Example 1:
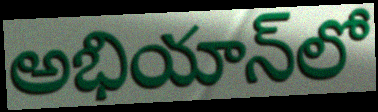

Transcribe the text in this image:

అభియాన్‌లో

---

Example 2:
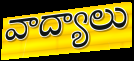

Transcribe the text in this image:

వాద్యాలు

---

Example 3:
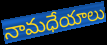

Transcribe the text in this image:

నామధేయాలు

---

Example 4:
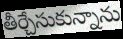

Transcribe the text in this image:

తీర్చేసుకున్నాను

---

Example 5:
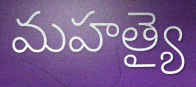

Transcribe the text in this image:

మహత్యై